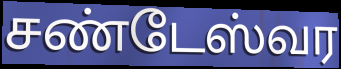
சண்டேஸ்வர